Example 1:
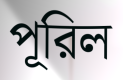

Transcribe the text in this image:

পূরিল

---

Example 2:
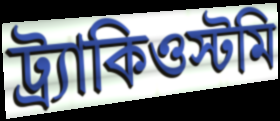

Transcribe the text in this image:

ট্র্যাকিওস্টমি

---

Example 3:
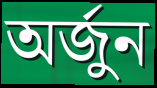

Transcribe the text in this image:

অর্জুন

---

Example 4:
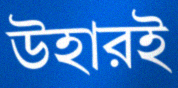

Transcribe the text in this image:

উহারই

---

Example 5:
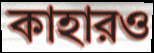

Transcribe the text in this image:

কাহারও